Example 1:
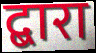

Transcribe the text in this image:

द्बारा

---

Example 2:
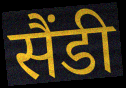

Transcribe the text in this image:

सैंडी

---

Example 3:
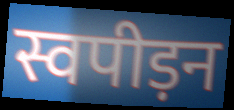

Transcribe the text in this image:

स्वपीड़न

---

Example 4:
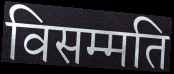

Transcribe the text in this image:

विसम्मति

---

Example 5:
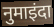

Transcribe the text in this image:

नुमाइंदा